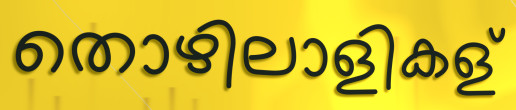
തൊഴിലാളികള്